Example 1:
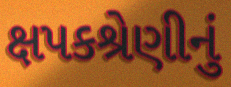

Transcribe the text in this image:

ક્ષપકશ્રેણીનું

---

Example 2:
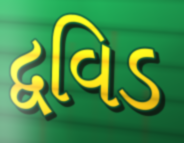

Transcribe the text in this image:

દ્વવિડ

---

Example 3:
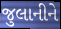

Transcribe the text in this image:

જુલાનીને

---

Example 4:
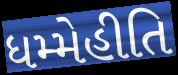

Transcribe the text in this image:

ધમ્મેહીતિ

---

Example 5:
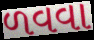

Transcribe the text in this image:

ળવવા